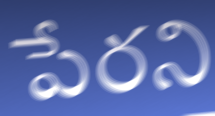
పేరని